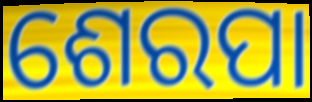
ଶେରପା